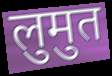
लुमुत